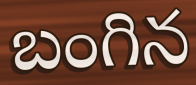
బంగిన